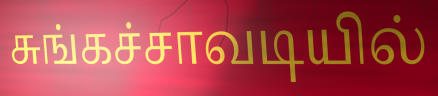
சுங்கச்சாவடியில்